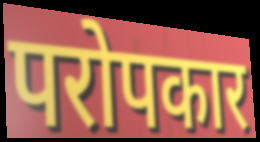
परोपकार